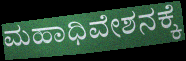
ಮಹಾಧಿವೇಶನಕ್ಕೆ